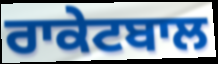
ਰਾਕੇਟਬਾਲ